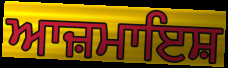
ਆਜ਼ਮਾਇਸ਼